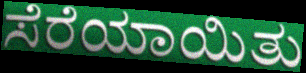
ಸೆರೆಯಾಯಿತು